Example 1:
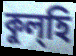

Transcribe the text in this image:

কুল্হি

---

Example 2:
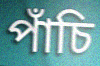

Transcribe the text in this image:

পাঁচি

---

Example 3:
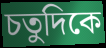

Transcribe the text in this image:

চতুদিকে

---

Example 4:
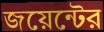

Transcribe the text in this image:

জয়েন্টের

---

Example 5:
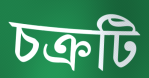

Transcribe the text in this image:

চক্রটি